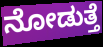
ನೋಡುತ್ತೆ